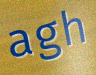
agh